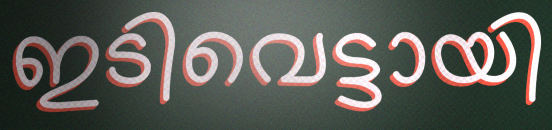
ഇടിവെട്ടായി